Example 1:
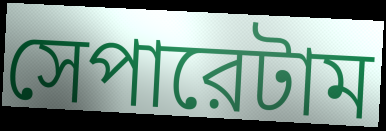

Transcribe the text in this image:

সেপারেটাম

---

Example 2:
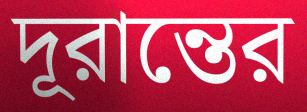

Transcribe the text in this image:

দূরান্তের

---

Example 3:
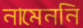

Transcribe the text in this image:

নামেননি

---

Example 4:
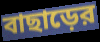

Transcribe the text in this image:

বাছাড়ের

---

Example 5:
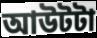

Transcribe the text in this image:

আউটটা